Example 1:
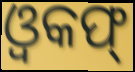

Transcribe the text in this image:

ଓ୍ୱକଫ୍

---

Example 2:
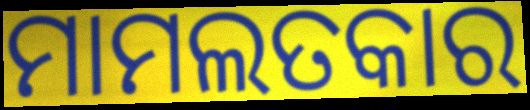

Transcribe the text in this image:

ମାମଲତକାର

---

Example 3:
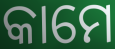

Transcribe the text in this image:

କାମେ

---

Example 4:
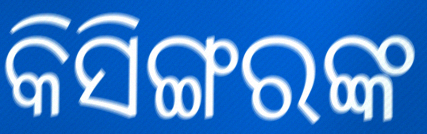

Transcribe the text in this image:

କିସିଙ୍ଗରଙ୍କ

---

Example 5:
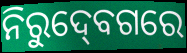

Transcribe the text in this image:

ନିରୁଦ୍‍ବେଗରେ